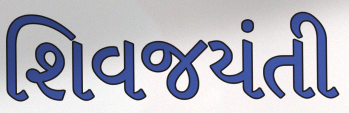
શિવજયંતી